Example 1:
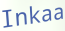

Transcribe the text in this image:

Inkaa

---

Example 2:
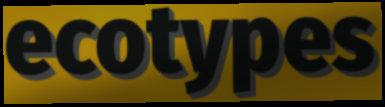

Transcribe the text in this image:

ecotypes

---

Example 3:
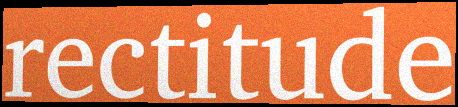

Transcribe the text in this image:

rectitude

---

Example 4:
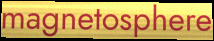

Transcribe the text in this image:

magnetosphere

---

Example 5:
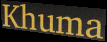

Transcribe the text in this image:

Khuma